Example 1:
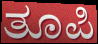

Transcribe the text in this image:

ತೂಪಿ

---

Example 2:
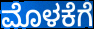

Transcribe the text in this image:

ಮೊಳಕೆಗೆ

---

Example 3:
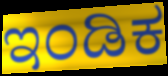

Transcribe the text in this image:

ಇಂಡಿಕ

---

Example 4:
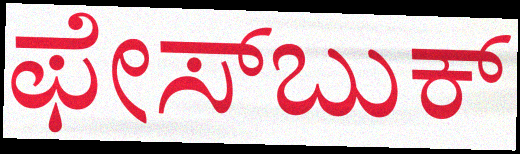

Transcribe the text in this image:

ಫೇಸ್‌ಬುಕ್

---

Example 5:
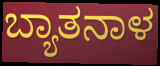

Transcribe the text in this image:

ಬ್ಯಾತನಾಳ